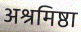
अश्रमिष्ठा